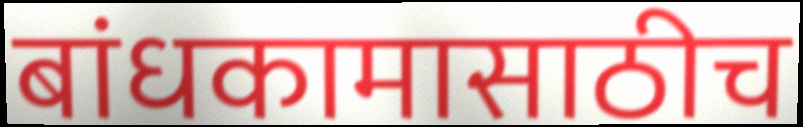
बांधकामासाठीच